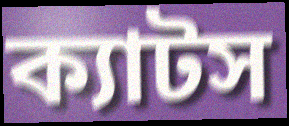
ক্যাটস